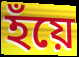
হঁয়ে